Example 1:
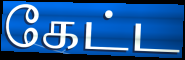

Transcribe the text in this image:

கேட்ட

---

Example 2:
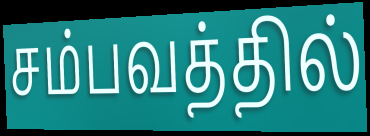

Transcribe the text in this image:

சம்பவத்தில்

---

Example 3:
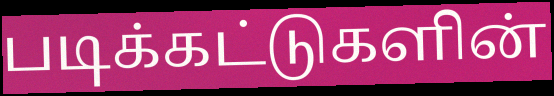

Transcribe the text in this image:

படிக்கட்டுகளின்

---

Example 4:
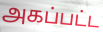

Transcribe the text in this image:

அகப்பட்ட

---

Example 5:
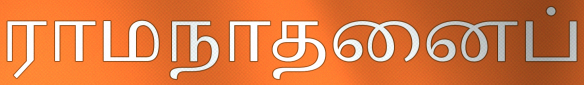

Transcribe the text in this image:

ராமநாதனைப்